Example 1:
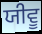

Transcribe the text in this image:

ਯੀਵੂ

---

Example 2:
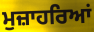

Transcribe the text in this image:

ਮੁਜ਼ਾਹਰਿਆਂ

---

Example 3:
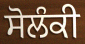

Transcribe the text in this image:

ਸੋਲੰਕੀ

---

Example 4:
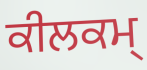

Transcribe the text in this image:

ਕੀਲਕਮ੍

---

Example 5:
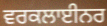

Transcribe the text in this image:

ਵਰਕਲਾਈਨਰ